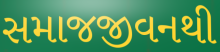
સમાજજીવનથી